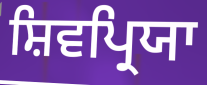
ਸ਼ਿਵਪ੍ਰਿਯਾ